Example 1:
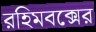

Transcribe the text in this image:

রহিমবক্সের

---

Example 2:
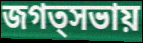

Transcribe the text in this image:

জগত্সভায়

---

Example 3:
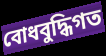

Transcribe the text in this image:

বোধবুদ্ধিগত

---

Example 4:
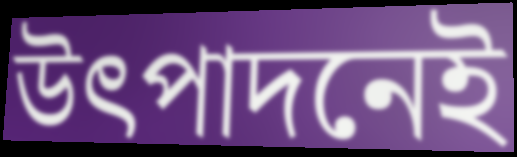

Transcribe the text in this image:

উৎপাদনেই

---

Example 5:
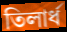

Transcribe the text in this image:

তিলার্ধ